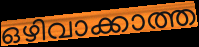
ഒഴിവാക്കാത്ത